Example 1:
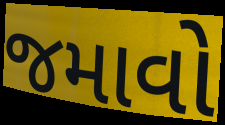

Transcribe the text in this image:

જમાવો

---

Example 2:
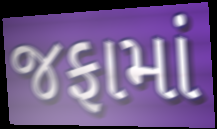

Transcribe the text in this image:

જફામાં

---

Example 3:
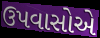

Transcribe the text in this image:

ઉપવાસોએ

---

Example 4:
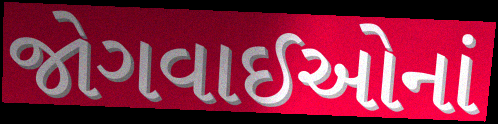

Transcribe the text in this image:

જોગવાઈઓનાં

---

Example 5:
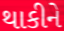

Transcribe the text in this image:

થાકીને